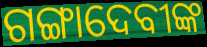
ଗଙ୍ଗାଦେବୀଙ୍କ